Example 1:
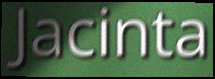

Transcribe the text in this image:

Jacinta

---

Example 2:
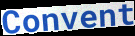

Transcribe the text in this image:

Convent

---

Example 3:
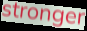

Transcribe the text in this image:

stronger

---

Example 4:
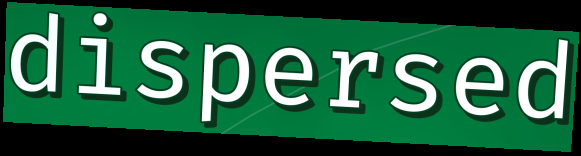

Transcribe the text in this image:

dispersed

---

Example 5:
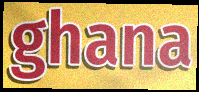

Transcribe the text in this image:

ghana